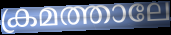
ക്രമത്താലേ